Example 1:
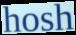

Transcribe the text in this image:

hosh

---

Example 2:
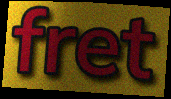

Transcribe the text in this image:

fret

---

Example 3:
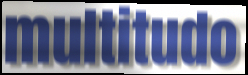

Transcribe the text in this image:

multitudo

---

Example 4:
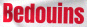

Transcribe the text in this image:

Bedouins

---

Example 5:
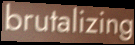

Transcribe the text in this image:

brutalizing